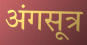
अंगसूत्र